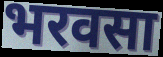
भरवसा